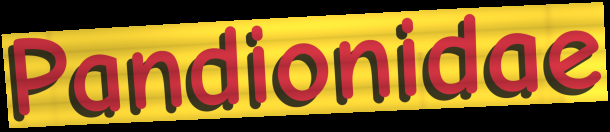
Pandionidae